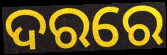
ଦରରେ